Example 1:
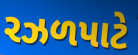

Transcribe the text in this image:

રઝળપાટે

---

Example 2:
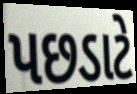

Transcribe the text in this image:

પછડાટે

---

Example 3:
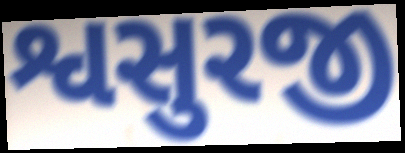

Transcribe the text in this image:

શ્વસુરજી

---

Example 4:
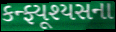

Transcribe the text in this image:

કન્ફ્યૂશ્યસના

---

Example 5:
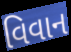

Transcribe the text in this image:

વિવાન